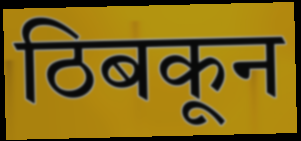
ठिबकून